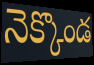
నెక్కొండ